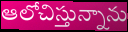
ఆలోచిస్తున్నాను